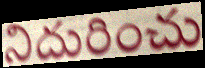
నిదురించు